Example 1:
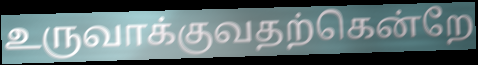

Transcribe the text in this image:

உருவாக்குவதற்கென்றே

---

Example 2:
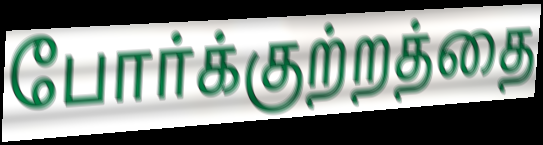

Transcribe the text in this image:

போர்க்குற்றத்தை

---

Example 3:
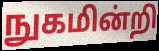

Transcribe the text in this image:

நுகமின்றி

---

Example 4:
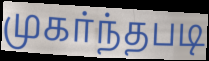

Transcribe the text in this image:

முகர்ந்தபடி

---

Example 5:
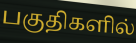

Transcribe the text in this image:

பகுதிகளில்